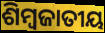
ଶିମ୍ବଜାତୀୟ